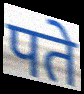
पते